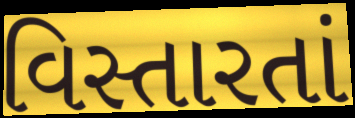
વિસ્તારતાં